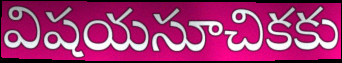
విషయసూచికకు